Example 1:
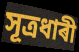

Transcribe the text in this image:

সূত্ৰধাৰী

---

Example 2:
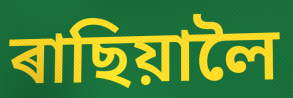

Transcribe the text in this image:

ৰাছিয়ালৈ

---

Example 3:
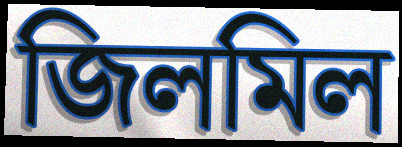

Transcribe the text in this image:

জিলমিল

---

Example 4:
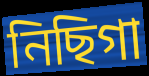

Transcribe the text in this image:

নিছিগা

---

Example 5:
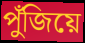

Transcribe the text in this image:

পুঁজিয়ে